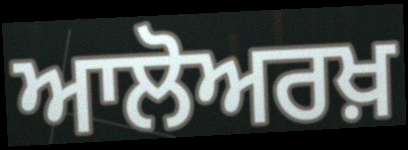
ਆਲੋਅਰਖ਼